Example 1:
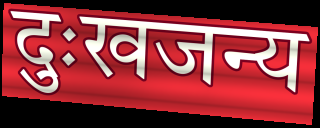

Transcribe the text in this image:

दुःखजन्य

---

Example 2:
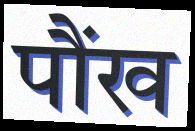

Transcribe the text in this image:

पौंख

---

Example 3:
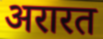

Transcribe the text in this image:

अरारत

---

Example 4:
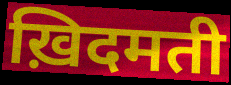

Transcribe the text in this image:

ख़िदमती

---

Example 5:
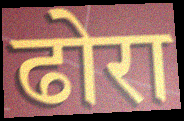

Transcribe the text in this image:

ढोरा